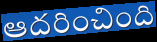
ఆదరించింది